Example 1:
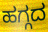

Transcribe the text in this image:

ಹಗ್ಗದ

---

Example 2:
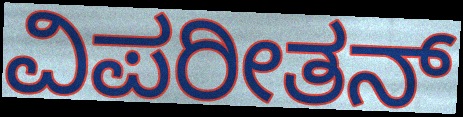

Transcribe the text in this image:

ವಿಪರೀತನ್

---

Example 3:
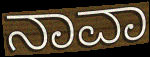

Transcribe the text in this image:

ನಾವಾ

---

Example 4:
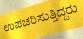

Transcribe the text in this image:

ಉಪಚರಿಸುತ್ತಿದ್ದರು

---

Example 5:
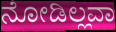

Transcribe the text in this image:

ನೋಡಿಲ್ಲವಾ